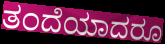
ತಂದೆಯಾದರೂ